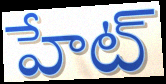
హేట్